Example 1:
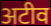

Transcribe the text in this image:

अटीव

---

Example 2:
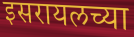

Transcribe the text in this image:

इसरायलच्या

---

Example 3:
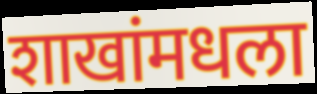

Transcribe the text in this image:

शाखांमधला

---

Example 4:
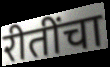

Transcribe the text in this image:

रीतींचा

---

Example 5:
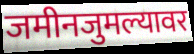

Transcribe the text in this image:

जमीनजुमल्यावर